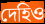
দেহিও